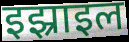
इझ्राइल